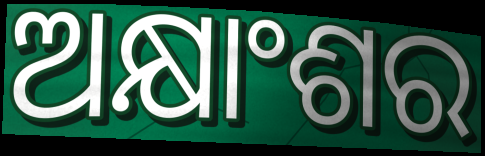
ଅକ୍ଷାଂଶର